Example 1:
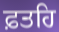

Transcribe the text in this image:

ਫ਼ਤਹਿ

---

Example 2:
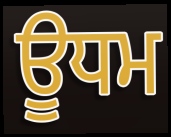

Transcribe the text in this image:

ਊਧਮ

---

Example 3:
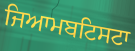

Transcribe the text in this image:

ਜਿਆਮਬਟਿਸਟਾ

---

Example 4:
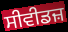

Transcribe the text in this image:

ਸੀਵੀਡਜ਼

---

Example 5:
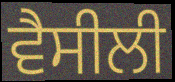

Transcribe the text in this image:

ਵੈਸੀਲੀ